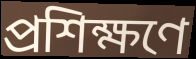
প্রশিক্ষণে